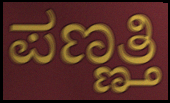
ಪಣ್ಣತ್ತಿ